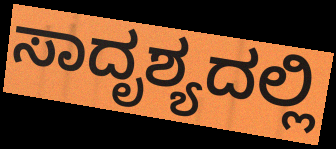
ಸಾದೃಶ್ಯದಲ್ಲಿ